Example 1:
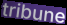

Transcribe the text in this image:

tribune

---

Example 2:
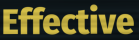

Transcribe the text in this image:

Effective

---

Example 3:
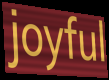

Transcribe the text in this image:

joyful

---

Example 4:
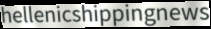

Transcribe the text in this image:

hellenicshippingnews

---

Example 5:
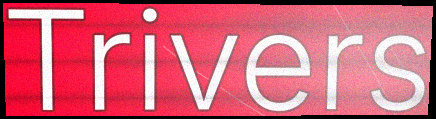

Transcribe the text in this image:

Trivers